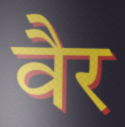
वैर